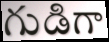
గుడిగా